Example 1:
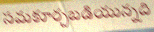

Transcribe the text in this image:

సమకూర్చబడియున్నది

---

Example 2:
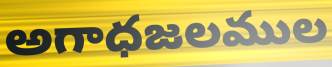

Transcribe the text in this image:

అగాధజలముల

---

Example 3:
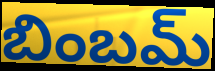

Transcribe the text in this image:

బింబమ్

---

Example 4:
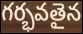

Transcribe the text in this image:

గర్భవతైన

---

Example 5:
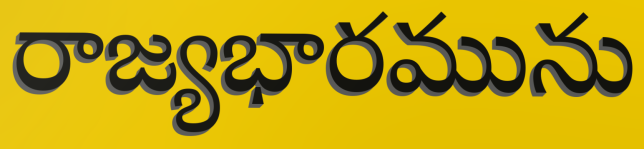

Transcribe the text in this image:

రాజ్యభారమును